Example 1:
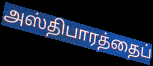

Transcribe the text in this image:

அஸ்திபாரத்தைப்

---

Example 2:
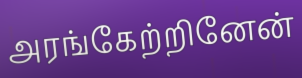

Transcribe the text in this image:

அரங்கேற்றினேன்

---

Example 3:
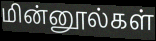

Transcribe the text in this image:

மின்னூல்கள்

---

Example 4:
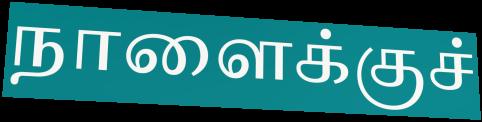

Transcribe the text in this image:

நாளைக்குச்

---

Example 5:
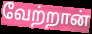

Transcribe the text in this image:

வேற்றான்